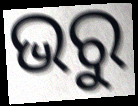
ଭରୁ